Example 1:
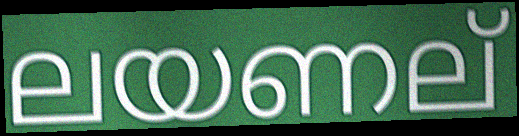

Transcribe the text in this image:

ലയണല്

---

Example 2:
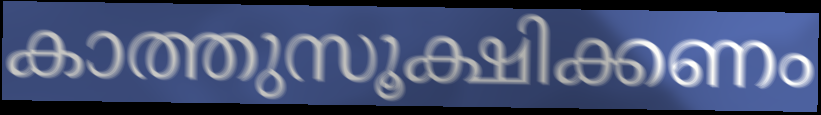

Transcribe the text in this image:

കാത്തുസൂക്ഷിക്കണം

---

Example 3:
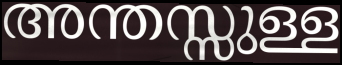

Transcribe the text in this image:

അന്തസ്സുള്ള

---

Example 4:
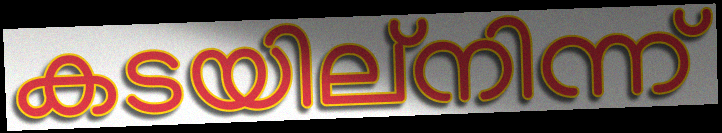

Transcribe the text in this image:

കടയില്നിന്ന്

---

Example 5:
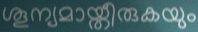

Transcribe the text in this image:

ശൂന്യമായ്തീരുകയും